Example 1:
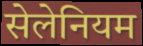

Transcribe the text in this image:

सेलेनियम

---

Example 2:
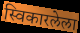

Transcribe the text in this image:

स्विकारलेला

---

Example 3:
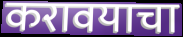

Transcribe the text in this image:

करावयाचा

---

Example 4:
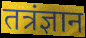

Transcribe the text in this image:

तत्रंज्ञान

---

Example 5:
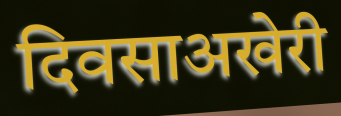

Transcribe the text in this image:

दिवसाअखेरी